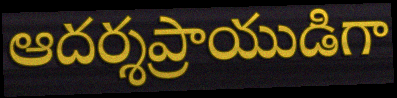
ఆదర్శప్రాయుడిగా